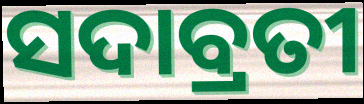
ସଦାବ୍ରତୀ